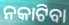
ନକାଟିବା